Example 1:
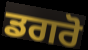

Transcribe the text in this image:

ਡਗਰੋ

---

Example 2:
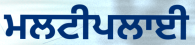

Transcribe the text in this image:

ਮਲਟੀਪਲਾਈ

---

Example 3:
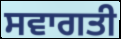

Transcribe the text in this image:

ਸਵਾਗਤੀ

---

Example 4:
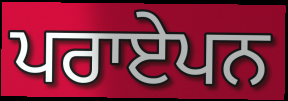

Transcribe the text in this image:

ਪਰਾਏਪਨ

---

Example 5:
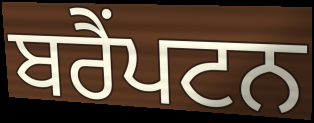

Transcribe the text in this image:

ਬਰੈਂਪਟਨ